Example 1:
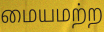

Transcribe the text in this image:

மையமற்ற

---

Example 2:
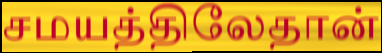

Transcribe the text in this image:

சமயத்திலேதான்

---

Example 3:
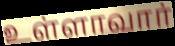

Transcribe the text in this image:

உள்ளாவார்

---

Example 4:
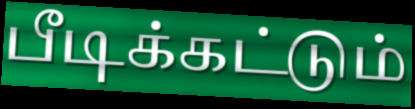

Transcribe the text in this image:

பீடிக்கட்டும்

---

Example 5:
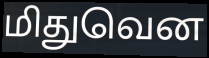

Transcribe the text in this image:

மிதுவென